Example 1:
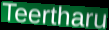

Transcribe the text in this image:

Teertharu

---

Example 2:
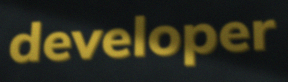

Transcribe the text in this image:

developer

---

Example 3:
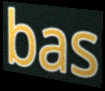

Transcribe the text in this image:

bas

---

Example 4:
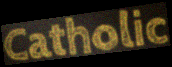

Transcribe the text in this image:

Catholic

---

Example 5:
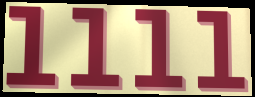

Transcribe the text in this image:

llll